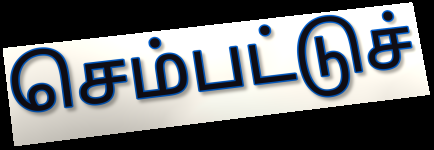
செம்பட்டுச்